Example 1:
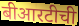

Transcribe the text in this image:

बीआरटीची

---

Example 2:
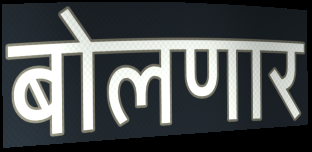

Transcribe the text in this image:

बोलणार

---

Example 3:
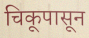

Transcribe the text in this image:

चिकूपासून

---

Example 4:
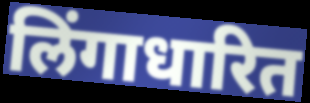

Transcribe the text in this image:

लिंगाधारित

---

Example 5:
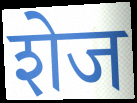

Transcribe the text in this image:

शेज